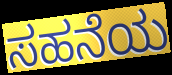
ಸಹನೆಯ